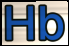
Hb